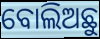
ବୋଲିଅଛୁ